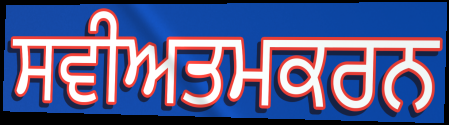
ਸਵੀਅਤਮਕਰਨ